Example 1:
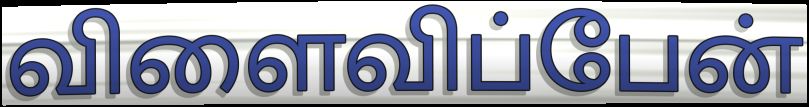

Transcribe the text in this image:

விளைவிப்பேன்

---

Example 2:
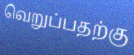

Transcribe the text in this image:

வெறுப்பதற்கு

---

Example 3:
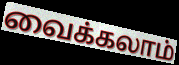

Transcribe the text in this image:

வைக்கலாம்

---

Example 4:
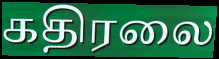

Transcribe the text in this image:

கதிரலை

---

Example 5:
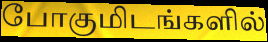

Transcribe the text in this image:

போகுமிடங்களில்